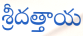
శ్రీదత్తాయ